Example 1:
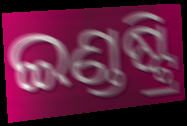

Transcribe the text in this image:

ଇଣ୍ଡଷ୍ଟ୍ରି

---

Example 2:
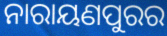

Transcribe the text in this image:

ନାରାୟଣପୁରର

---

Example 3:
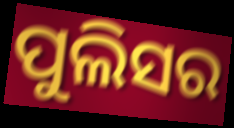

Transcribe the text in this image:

ପୁଲିସର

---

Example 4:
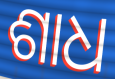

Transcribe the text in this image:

ଶାଧ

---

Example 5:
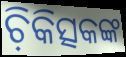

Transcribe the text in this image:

ଚ଼ିକିତ୍ସକଙ୍କ